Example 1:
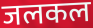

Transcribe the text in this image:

जलकल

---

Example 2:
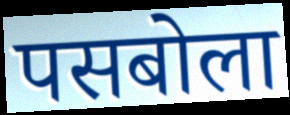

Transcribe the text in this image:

पसबोला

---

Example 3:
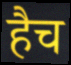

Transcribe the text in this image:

हैच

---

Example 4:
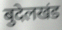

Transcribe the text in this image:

बुदेलखंड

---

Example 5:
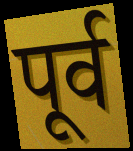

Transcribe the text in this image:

पूर्व